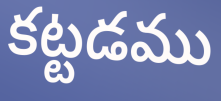
కట్టడము